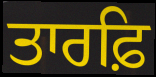
ਤਾਰਫ਼ਿ